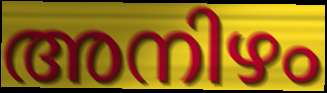
അനിഴം